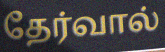
தேர்வால்